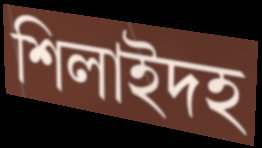
শিলাইদহ